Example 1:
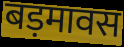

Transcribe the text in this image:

बड़मावस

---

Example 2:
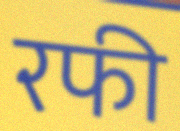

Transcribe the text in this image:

रफी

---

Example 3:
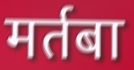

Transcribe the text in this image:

मर्तबा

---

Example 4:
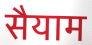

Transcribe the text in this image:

सैयाम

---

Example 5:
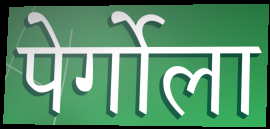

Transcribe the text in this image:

पेर्गोला